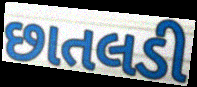
છાતલડી